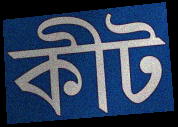
কীট